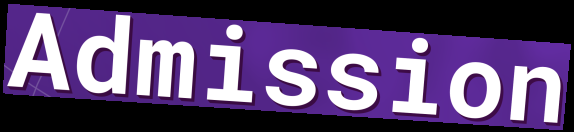
Admission